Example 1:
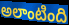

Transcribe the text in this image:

అలాంటింది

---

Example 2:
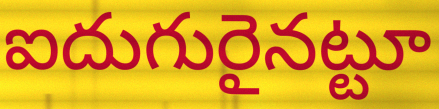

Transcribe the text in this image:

ఐదుగురైనట్టూ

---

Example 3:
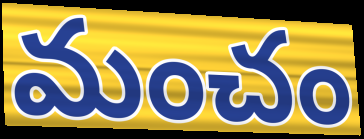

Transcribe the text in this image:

మంచం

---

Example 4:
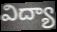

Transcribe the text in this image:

విద్యా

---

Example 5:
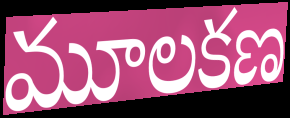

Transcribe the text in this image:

మూలకణ